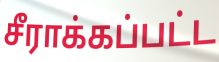
சீராக்கப்பட்ட